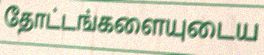
தோட்டங்களையுடைய